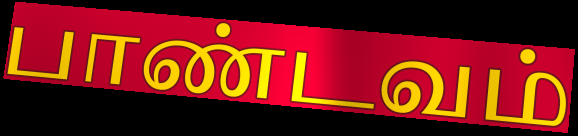
பாண்டவம்